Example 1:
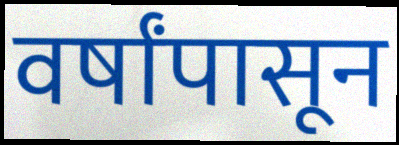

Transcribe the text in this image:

वर्षांपासून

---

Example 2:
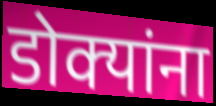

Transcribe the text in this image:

डोक्यांना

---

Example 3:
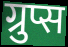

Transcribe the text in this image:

ग्रुप्स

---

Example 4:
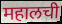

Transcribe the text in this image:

महालची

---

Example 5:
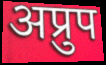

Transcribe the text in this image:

अप्रुप